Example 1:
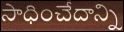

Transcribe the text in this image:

సాధించేదాన్ని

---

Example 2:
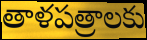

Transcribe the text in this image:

తాళపత్రాలకు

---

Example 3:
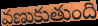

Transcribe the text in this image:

వణుకుతుంది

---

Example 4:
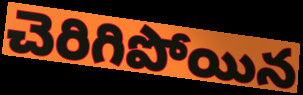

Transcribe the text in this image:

చెరిగిపోయిన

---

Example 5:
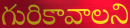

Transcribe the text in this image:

గురికావాలని